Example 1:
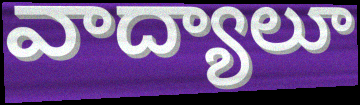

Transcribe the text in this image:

వాద్యాలూ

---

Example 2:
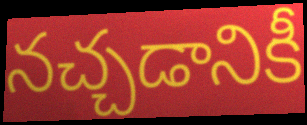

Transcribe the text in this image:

నచ్చడానికీ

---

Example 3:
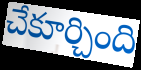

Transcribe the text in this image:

చేకూర్చింది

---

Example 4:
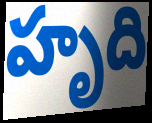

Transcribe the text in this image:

హృది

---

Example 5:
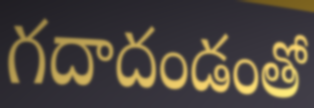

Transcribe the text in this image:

గదాదండంతో